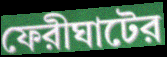
ফেরীঘাটের